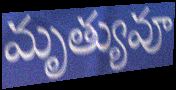
మృత్యువూ